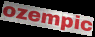
ozempic